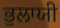
ਭੁਲਾਯੀ